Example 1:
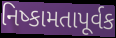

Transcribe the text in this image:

નિષ્કામતાપૂર્વક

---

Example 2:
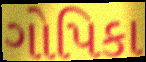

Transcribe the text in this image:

ગોપિકા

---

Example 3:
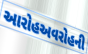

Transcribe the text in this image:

આરોહઅવરોહની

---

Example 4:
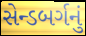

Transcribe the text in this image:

સેન્ડબર્ગનું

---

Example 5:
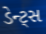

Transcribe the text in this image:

ડેન્ટ્સ